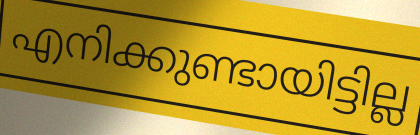
എനിക്കുണ്ടായിട്ടില്ല